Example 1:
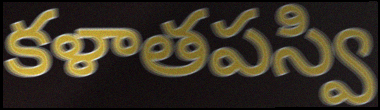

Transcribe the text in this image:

కళాతపస్వి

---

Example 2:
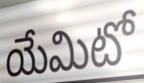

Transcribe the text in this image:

యేమిటో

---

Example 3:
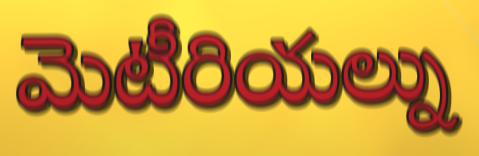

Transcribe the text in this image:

మెటీరియల్ను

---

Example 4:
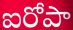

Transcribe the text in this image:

ఐరోపా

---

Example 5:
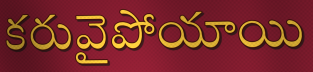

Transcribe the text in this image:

కరువైపోయాయి